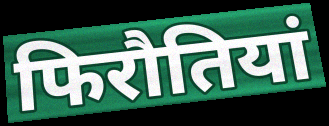
फिरौतियां